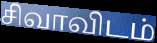
சிவாவிடம்